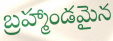
బ్రహ్మాండమైన